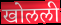
खोलली